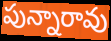
పున్నారావు